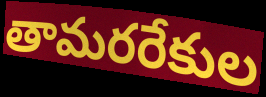
తామరరేకుల